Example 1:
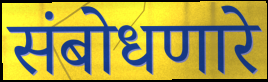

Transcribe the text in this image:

संबोधणारे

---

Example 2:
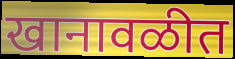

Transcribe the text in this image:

खानावळीत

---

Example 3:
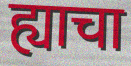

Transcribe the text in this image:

ह्याचा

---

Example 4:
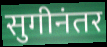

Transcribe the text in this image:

सुगीनंतर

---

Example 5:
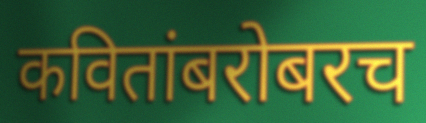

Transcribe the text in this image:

कवितांबरोबरच